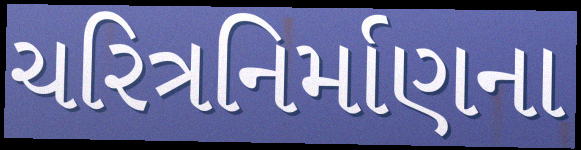
ચરિત્રનિર્માણના